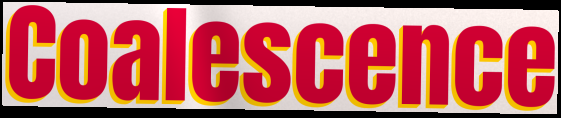
Coalescence